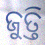
ଜୁତ୍ତି